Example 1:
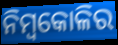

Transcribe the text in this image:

ନିମ୍ବକୋଳିର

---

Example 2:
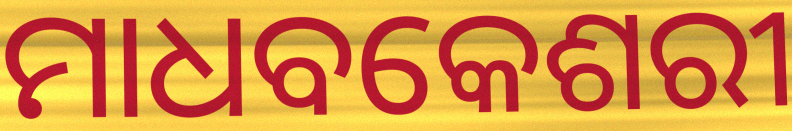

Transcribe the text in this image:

ମାଧବକେଶରୀ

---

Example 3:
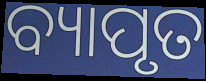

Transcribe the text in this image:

ବ୍ୟାପୃତ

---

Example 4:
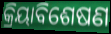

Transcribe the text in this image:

କ୍ରିୟାବିଶେଷଣ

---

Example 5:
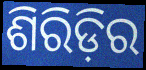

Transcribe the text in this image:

ଶିରିଡ଼ିର